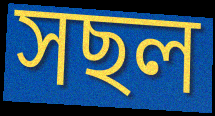
সছল